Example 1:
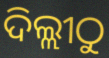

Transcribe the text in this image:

ଦିଲ୍ଲୀଠୁ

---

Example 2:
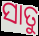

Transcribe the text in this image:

ସାତୁ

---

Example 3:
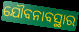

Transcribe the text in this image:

ଯୌବନାବସ୍ଥାର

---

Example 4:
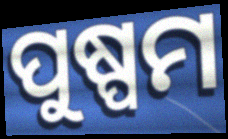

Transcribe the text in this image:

ପୁଷ୍ପମ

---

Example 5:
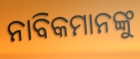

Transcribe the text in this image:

ନାବିକମାନଙ୍କୁ